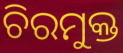
ଚିରମୁକ୍ତ